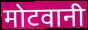
मोटवानी